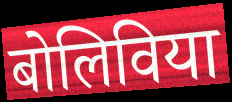
बोलिविया